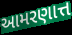
આમરણાત્ત